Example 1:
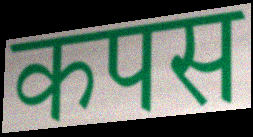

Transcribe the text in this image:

कपस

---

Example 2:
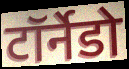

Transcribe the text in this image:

टॉर्नेडो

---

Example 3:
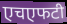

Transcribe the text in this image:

एचएफटी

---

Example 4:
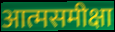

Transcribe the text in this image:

आत्मसमीक्षा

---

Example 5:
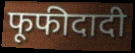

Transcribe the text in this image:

फूफीदादी